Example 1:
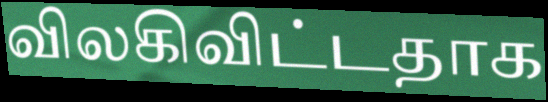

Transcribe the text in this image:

விலகிவிட்டதாக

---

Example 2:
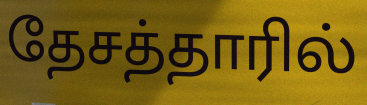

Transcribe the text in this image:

தேசத்தாரில்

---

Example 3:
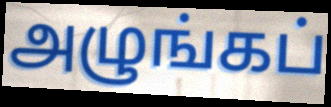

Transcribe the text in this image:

அழுங்கப்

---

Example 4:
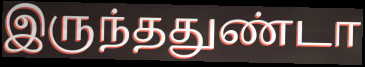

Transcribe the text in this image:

இருந்ததுண்டா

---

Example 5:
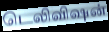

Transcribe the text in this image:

டெலிவிஷன்